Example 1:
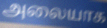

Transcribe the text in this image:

அலையாக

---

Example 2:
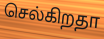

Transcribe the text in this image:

செல்கிறதா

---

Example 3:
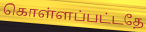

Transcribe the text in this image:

கொள்ளப்பட்டதே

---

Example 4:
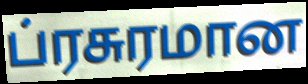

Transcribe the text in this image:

ப்ரசுரமான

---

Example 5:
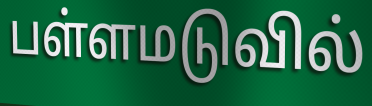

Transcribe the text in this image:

பள்ளமடுவில்